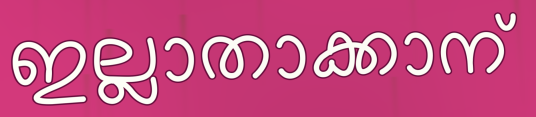
ഇല്ലാതാക്കാന്